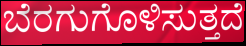
ಬೆರಗುಗೊಳಿಸುತ್ತದೆ